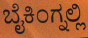
ಬೈಕಿಂಗ್ನಲ್ಲಿ